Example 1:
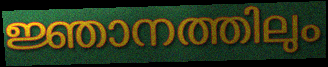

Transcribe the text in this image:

ജ്ഞാനത്തിലും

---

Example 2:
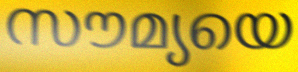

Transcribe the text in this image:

സൗമ്യയെ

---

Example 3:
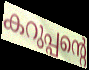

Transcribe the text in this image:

കറുപ്പന്റെ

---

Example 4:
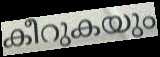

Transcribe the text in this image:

കീറുകയും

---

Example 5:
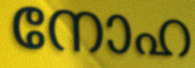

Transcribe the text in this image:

നോഹ